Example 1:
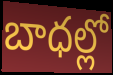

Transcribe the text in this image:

బాధల్లో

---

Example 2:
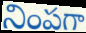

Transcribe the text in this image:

నింపగా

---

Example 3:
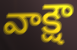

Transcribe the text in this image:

వాక్షౌ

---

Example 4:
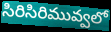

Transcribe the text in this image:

సిరిసిరిమువ్వలో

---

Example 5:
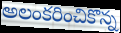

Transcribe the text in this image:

అలంకరించికొన్న